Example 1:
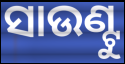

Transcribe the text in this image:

ସାଉଣ୍ଟୁ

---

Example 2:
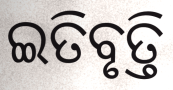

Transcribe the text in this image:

ଇତିବୃତ୍ତି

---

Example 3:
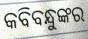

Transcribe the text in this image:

କବିବନ୍ଧୁଙ୍କର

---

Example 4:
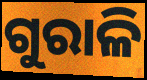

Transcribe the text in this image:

ଗୁରାଳି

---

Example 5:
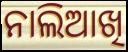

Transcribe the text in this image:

ନାଲିଆଖି